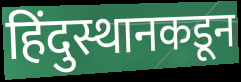
हिंदुस्थानकडून